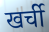
खर्ची